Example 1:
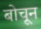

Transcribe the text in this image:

बोचून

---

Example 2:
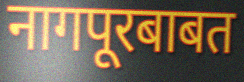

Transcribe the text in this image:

नागपूरबाबत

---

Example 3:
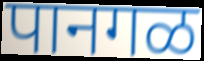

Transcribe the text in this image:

पानगळ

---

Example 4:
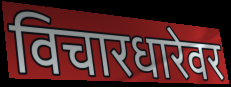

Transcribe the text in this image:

विचारधारेवर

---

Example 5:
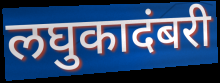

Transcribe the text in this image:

लघुकादंबरी